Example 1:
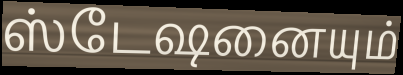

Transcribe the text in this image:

ஸ்டேஷனையும்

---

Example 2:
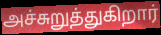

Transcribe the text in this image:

அச்சுறுத்துகிறார்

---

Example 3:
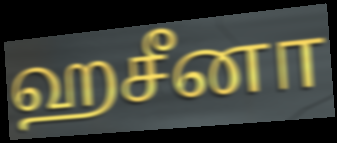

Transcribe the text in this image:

ஹசீனா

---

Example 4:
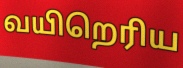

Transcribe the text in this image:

வயிறெரிய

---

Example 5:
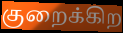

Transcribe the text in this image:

குறைக்கிற